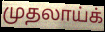
முதலாய்க்